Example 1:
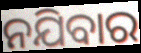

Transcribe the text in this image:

ନଯିବାର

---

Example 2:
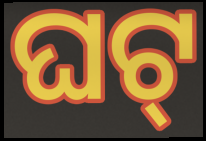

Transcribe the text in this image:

ଘଟ୍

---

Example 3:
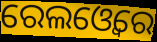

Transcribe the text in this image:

ରେଲଓ୍ୱେରେ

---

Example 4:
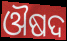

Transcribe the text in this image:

ଔଷଦ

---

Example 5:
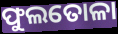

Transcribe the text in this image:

ଫୁଲତୋଳା